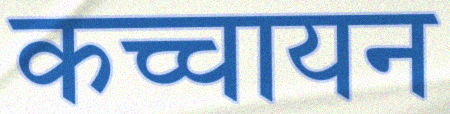
कच्चायन